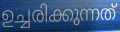
ഉച്ചരിക്കുന്നത്